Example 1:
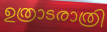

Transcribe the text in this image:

ഉത്രാടരാത്രി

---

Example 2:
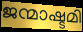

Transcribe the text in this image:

ജന്മാഷ്ടമി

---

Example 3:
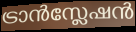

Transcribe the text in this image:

ട്രാൻസ്ലേഷൻ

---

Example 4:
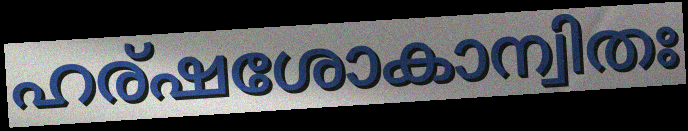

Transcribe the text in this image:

ഹര്ഷശോകാന്വിതഃ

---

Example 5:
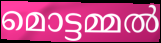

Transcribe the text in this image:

മൊട്ടമ്മൽ